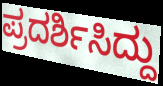
ಪ್ರದರ್ಶಿಸಿದ್ದು